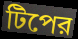
টিপের